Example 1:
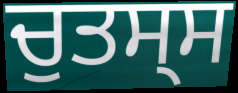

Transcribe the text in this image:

ਚੁਤਸ੍ਸ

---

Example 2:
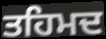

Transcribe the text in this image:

ਤਹਿਮਦ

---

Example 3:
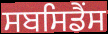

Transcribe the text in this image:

ਸਬਸਿਡੈਂਸ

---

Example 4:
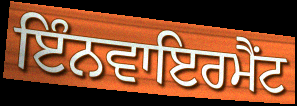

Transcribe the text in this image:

ਇੰਨਵਾਇਰਮੈਂਟ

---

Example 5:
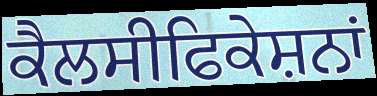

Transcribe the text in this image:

ਕੈਲਸੀਫਿਕੇਸ਼ਨਾਂ